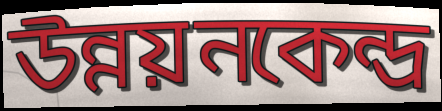
উন্নয়নকেন্দ্র